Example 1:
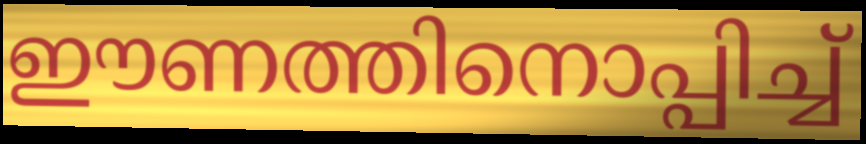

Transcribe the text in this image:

ഈണത്തിനൊപ്പിച്ച്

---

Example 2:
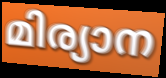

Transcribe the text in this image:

മിര്യാന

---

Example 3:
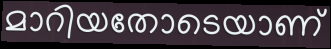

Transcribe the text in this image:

മാറിയതോടെയാണ്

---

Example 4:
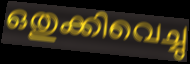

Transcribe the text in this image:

ഒതുക്കിവെച്ചു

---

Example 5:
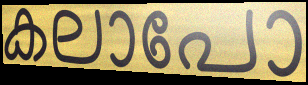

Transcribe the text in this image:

കലാപോ